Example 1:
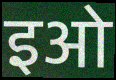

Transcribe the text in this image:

इओ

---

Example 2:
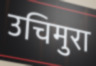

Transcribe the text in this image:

उचिमुरा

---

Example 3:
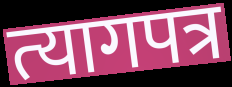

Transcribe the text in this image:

त्‍यागपत्र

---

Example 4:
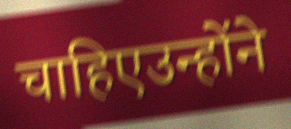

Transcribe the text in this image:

चाहिएउन्होंने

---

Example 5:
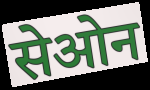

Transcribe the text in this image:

सेओन